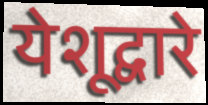
येशूद्वारे